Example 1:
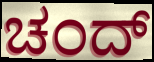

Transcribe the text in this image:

ಚಂದ್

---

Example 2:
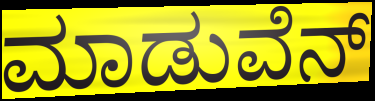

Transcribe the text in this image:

ಮಾಡುವೆನ್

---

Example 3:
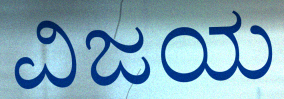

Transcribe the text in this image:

ವಿಜಯ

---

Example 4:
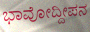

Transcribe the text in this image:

ಭಾವೋದ್ದೀಪನ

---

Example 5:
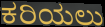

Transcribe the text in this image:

ಕರಿಯಲು